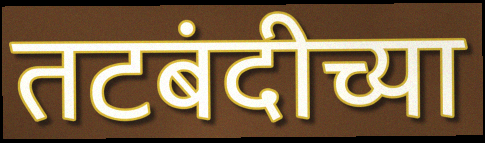
तटबंदीच्या